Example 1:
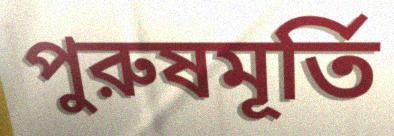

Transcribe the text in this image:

পুরুষমূর্তি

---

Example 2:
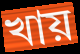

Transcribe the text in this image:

খায়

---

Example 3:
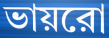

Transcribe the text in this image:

ভায়রো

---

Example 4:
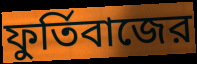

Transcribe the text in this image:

ফুর্তিবাজের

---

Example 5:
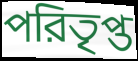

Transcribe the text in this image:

পরিতৃপ্ত